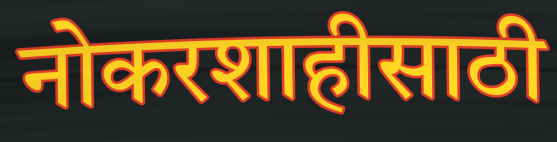
नोकरशाहीसाठी